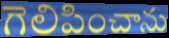
గెలిపించాను